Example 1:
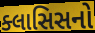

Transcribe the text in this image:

ક્લાસિસનો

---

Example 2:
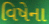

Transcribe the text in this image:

વિષેના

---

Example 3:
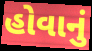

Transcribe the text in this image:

હોવાનું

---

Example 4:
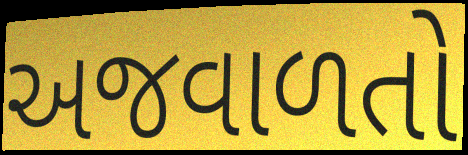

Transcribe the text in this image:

અજવાળતો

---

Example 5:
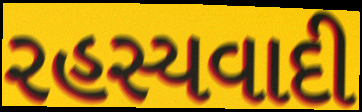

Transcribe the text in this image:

રહસ્યવાદી